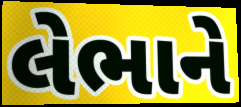
લેભાને